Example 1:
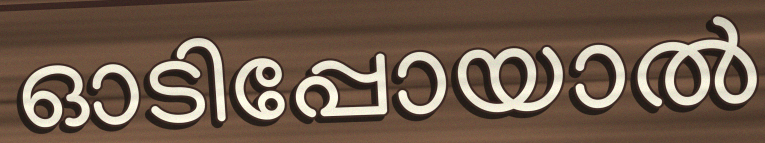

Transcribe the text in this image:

ഓടിപ്പോയാൽ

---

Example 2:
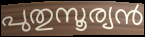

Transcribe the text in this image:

പുതുസൂര്യൻ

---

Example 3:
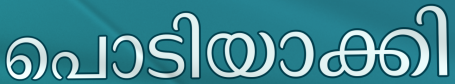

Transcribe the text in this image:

പൊടിയാക്കി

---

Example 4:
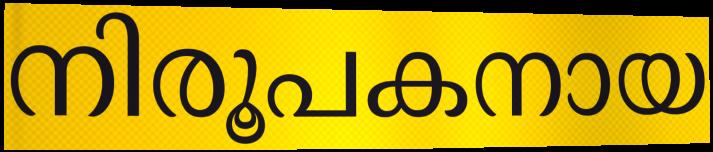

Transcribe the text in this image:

നിരൂപകനായ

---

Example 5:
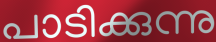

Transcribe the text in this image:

പാടിക്കുന്നു